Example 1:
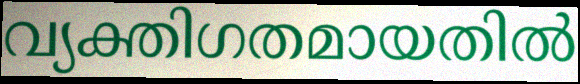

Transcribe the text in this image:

വ്യക്തിഗതമായതിൽ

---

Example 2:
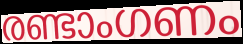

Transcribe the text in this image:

രണ്ടാംഗണം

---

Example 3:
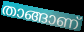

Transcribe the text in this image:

താങ്ങാണ്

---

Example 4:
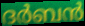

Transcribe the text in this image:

ദർബൻ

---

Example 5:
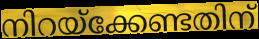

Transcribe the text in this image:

നിറയ്ക്കേണ്ടതിന്